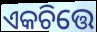
ଏକଚିତ୍ତେ